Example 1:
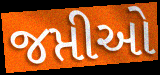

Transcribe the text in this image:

જપ્તીઓ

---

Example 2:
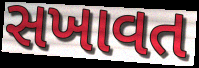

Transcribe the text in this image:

સખાવત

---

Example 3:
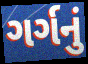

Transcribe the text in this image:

ગર્ગનું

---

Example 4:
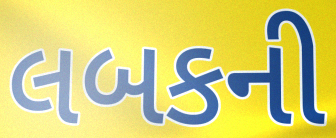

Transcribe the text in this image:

લબકની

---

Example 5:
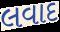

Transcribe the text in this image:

લવાદ